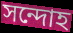
সন্দোহ